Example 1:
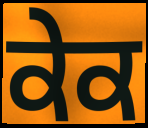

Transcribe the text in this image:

ਕੇਕ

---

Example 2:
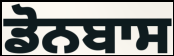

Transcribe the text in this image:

ਡੋਨਬਾਸ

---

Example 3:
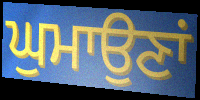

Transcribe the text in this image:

ਘੁਮਾਉਣਾਂ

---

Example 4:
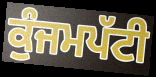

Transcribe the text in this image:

ਕੁੰਜਮਪੱਟੀ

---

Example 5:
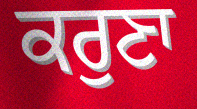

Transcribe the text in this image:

ਕਰੁਣਾ